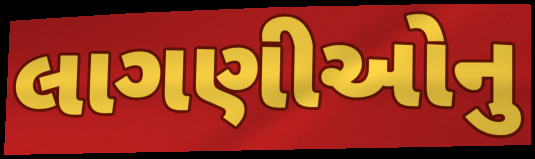
લાગણીઓનુ